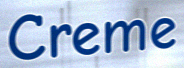
Creme